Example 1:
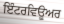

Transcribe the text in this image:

ਇੰਟਰਵਿਊਅਰ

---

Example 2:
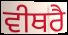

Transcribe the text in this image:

ਵੀਥਰੈ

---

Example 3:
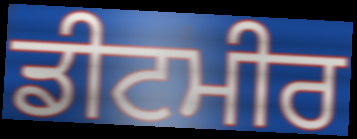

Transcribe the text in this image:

ਡੀਟਮੀਰ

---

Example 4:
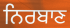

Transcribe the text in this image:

ਨਿਰਬਾਣ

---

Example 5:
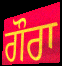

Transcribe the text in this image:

ਗੌਰਾ